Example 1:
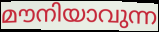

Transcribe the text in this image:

മൗനിയാവുന്ന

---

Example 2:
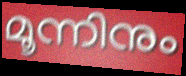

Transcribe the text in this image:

മൂന്നിനും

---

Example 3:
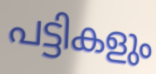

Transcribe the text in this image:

പട്ടികളും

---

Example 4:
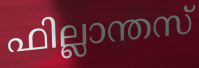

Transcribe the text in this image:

ഫില്ലാന്തസ്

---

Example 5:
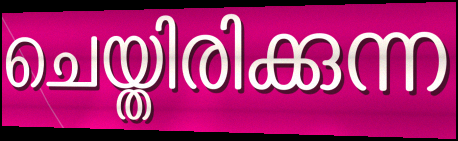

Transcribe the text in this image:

ചെയ്തിരിക്കുന്ന